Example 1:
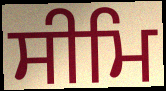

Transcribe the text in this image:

ਸੀਮਿ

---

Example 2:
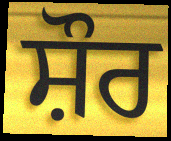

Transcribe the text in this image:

ਸ਼ੌਰ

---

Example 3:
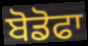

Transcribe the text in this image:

ਬੋਡੋਫਾ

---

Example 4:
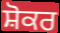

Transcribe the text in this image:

ਸ਼ੋਕਰ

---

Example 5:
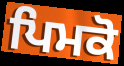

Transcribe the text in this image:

ਪਿਮਕੋ